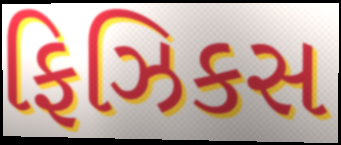
ફિઝિકસ